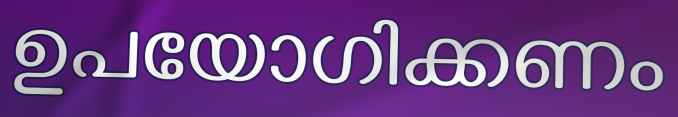
ഉപയോഗിക്കണം